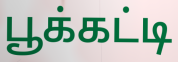
பூக்கட்டி